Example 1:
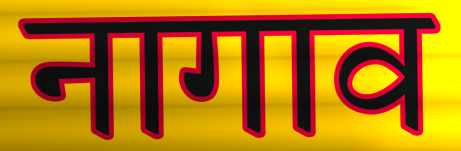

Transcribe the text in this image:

नागाव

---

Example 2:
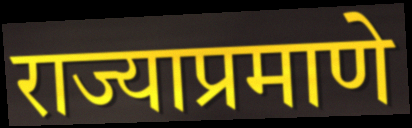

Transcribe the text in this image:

राज्याप्रमाणे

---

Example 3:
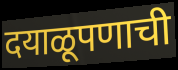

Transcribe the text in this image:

दयाळूपणाची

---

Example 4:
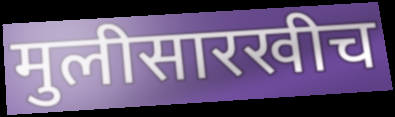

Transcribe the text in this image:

मुलीसारखीच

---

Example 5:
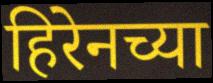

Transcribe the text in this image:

हिरेनच्या